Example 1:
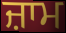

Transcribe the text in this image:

ਜ਼ਾਮ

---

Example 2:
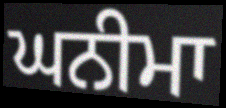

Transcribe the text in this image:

ਘਨੀਮਾ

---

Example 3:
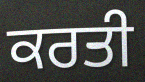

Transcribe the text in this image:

ਕਰਤੀ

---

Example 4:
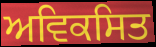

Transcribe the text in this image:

ਅਵਿਕਸਿਤ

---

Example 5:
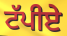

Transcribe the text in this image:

ਟੱਪੀਏ